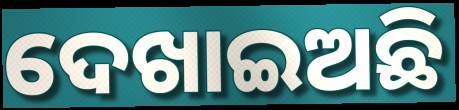
ଦେଖାଇଅଛି